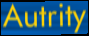
Autrity